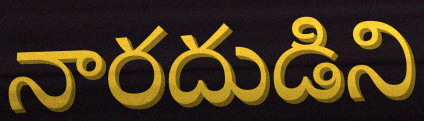
నారదుడిని